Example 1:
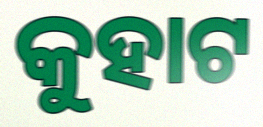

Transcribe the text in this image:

କୁହାଟ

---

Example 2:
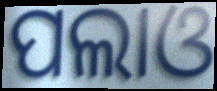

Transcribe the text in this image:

ପଲାଓ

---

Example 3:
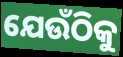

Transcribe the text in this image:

ଯେଉଁଠିକୁ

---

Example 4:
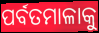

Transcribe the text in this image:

ପର୍ବତମାଳାକୁ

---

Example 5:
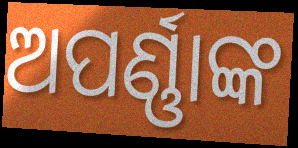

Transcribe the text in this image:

ଅପର୍ଣ୍ଣାଙ୍କ